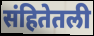
संहितेतली